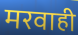
मरवाही